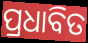
ପ୍ରଧାବିତ